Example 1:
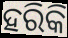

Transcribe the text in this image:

ହରିକି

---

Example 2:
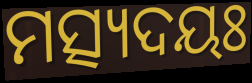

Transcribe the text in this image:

ମତ୍ସ୍ୟଦୟଃ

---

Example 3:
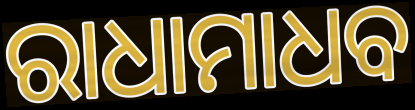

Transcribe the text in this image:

ରାଧାମାଧବ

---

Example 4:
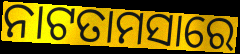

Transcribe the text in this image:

ନାଟତାମସାରେ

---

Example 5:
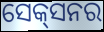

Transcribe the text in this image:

ସେକ୍‍ସନର